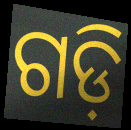
ଗଡ଼ି